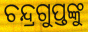
ଚନ୍ଦ୍ରଗୁପ୍ତଙ୍କୁ